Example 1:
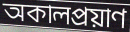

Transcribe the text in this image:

অকালপ্রয়াণ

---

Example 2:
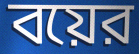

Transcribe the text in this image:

বয়ের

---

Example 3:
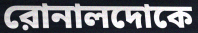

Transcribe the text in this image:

রোনালদোকে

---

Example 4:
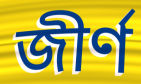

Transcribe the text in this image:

জীর্ণ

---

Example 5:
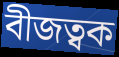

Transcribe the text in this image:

বীজত্বক